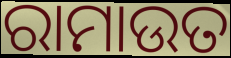
ରାମାଉତ